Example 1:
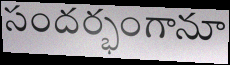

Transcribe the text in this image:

సందర్భంగానూ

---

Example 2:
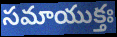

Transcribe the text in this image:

సమాయుక్తః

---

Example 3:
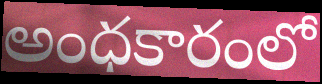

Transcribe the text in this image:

అంధకారంలో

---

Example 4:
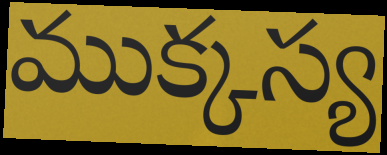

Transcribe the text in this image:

ముక్కస్య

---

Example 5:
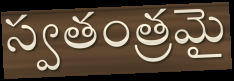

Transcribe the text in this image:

స్వతంత్రమై